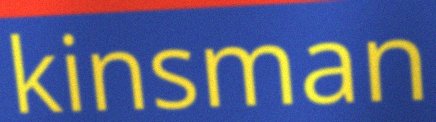
kinsman